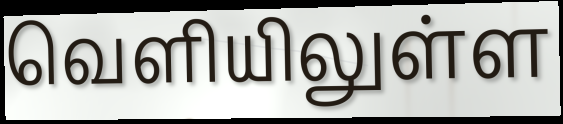
வெளியிலுள்ள